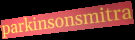
parkinsonsmitra